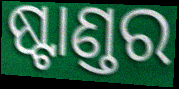
ଷ୍ଟାଣ୍ଡର